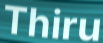
Thiru